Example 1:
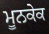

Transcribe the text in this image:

ਮੂਨਕੇਕ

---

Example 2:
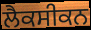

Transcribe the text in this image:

ਲੈਕਸੀਕਨ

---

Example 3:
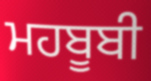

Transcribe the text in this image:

ਮਹਬੂਬੀ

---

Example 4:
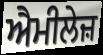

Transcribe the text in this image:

ਐਮੀਲੇਜ਼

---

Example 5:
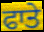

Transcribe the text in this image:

ਫਾਤੇ